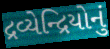
દ્રવ્યેન્દ્રિયોનું